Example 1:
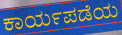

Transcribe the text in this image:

ಕಾರ್ಯಪಡೆಯ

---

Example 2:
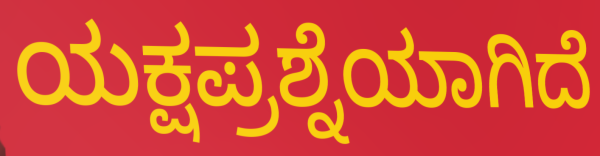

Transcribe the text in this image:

ಯಕ್ಷಪ್ರಶ್ನೆಯಾಗಿದೆ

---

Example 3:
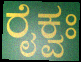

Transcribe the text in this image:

ರೈಕ್ವಃ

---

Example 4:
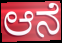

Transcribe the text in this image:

ಆನೆ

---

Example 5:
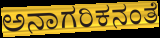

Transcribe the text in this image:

ಅನಾಗರಿಕನಂತೆ